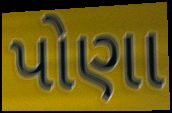
પોણા